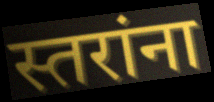
स्तरांना